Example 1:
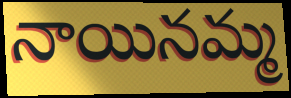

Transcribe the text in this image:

నాయినమ్మ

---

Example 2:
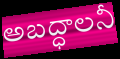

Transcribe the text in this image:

అబద్ధాలనీ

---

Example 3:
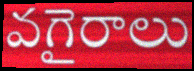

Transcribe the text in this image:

వగైరాలు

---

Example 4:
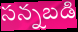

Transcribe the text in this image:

సన్నబడి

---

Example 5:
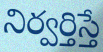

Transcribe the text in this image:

నిర్వర్తిస్తే